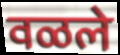
वळले